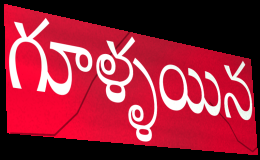
గూళ్ళయిన